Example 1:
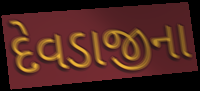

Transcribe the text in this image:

દેવડાજીના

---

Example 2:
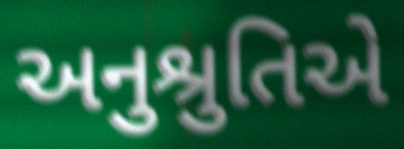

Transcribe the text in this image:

અનુશ્રુતિએ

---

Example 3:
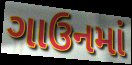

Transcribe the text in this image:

ગાઉનમાં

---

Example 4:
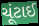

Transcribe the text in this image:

ચૂંટાઈ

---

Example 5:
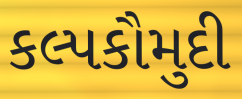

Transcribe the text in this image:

કલ્પકૌમુદી